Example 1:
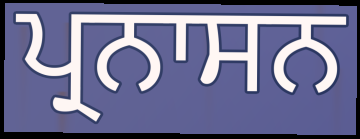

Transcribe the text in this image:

ਪ੍ਰਨਾਸਨ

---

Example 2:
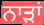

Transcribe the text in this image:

ਨਾੜਾਂ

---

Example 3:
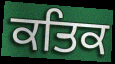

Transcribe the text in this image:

ਕਤਿਕ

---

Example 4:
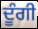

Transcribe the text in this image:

ਦੂੰਗੀ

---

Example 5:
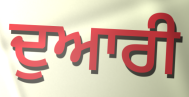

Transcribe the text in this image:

ਦੁਆਰੀ